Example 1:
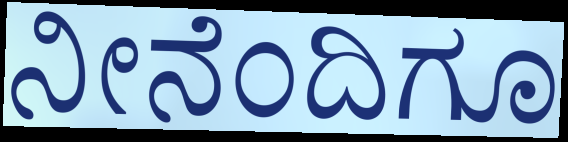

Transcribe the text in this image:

ನೀನೆಂದಿಗೂ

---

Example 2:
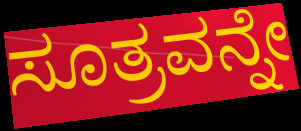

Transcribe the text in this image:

ಸೂತ್ರವನ್ನೇ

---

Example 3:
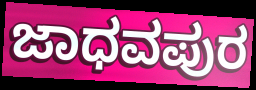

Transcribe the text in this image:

ಜಾಧವಪುರ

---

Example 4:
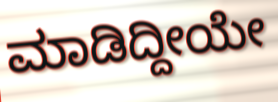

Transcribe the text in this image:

ಮಾಡಿದ್ದೀಯೇ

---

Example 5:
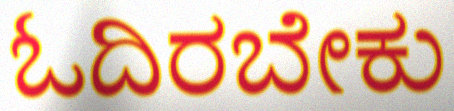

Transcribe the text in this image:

ಓದಿರಬೇಕು